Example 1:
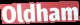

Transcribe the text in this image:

Oldham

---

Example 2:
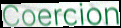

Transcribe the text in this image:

Coercion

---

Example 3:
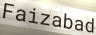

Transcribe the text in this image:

Faizabad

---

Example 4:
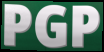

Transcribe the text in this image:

PGP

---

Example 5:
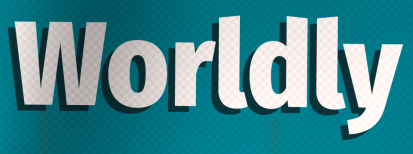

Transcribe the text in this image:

Worldly